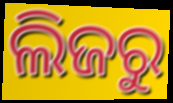
ଲିଜରୁ